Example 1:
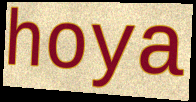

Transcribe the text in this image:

hoya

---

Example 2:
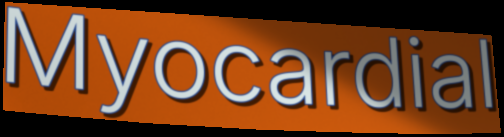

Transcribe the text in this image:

Myocardial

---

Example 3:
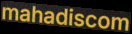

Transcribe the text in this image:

mahadiscom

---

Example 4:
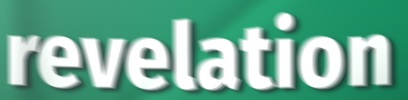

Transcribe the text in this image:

revelation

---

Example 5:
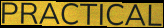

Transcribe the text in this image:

PRACTICAL